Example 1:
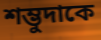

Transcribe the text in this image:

শম্ভুদাকে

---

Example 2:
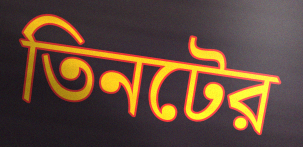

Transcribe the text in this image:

তিনটের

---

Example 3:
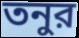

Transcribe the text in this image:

তনুর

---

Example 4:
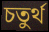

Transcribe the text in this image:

চতুর্থ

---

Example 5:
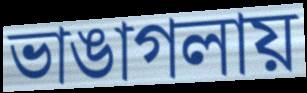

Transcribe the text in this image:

ভাঙাগলায়